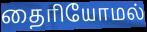
தைரியோமல்